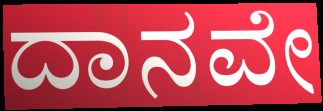
ದಾನವೇ